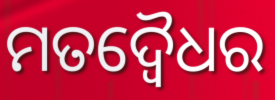
ମତଦ୍ୱୈଧର